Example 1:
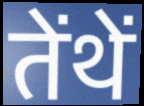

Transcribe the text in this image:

तेंथें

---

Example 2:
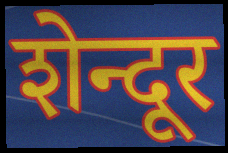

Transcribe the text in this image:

शेन्दूर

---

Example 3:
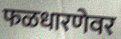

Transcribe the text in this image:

फळधारणेवर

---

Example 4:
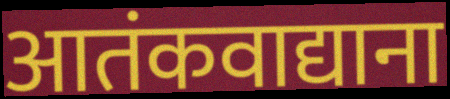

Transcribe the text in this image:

आतंकवाद्याना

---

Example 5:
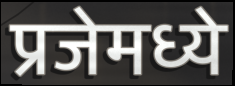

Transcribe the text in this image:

प्रजेमध्ये